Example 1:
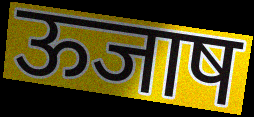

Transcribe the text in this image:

ऊजाष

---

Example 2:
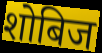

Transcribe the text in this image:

शोबिज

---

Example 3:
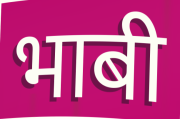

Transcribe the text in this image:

भाबी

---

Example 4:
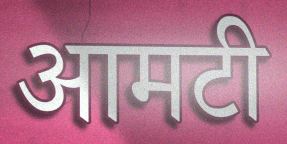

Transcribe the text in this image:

आमटी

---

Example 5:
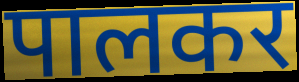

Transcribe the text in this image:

पालकर